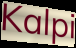
Kalpi